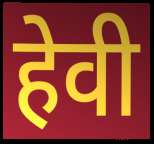
हेवी